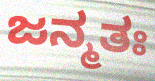
ಜನ್ಮತಃ